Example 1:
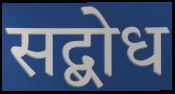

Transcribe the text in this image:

सद्बोध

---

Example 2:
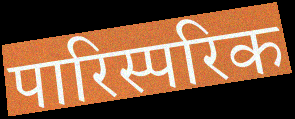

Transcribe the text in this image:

पारिस्परिक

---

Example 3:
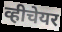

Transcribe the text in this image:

व्हीचेयर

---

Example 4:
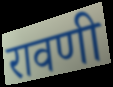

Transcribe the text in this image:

रावणी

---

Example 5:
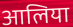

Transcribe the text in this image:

आलिया